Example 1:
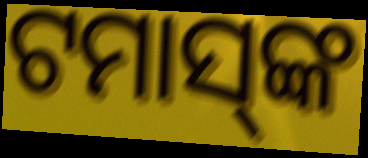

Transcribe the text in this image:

ଟମାସ୍‌ଙ୍କ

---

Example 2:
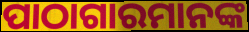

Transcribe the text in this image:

ପାଠାଗାରମାନଙ୍କ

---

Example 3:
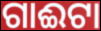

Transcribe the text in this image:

ଗାଈଟା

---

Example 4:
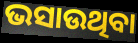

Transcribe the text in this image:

ଭସାଉଥିବା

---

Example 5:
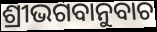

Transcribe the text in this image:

ଶ୍ରୀଭଗବାନୁବାଚ